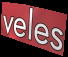
veles